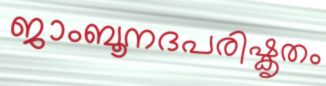
ജാംബൂനദപരിഷ്കൃതം